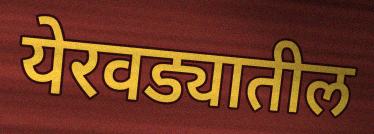
येरवड्यातील